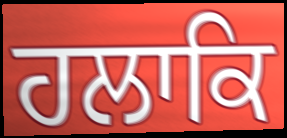
ਹਲਾਕਿ